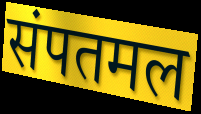
संपतमल